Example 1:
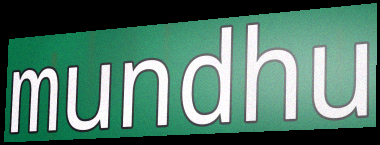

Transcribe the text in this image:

mundhu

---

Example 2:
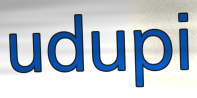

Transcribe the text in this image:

udupi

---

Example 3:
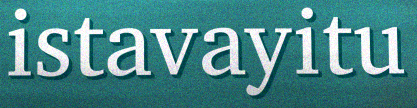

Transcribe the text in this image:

istavayitu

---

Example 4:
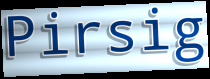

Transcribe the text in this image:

Pirsig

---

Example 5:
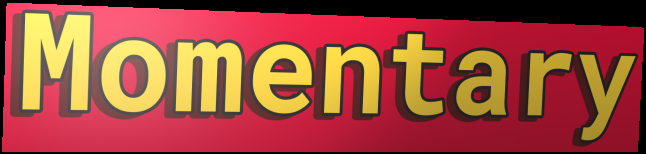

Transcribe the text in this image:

Momentary